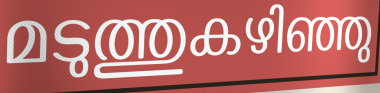
മടുത്തുകഴിഞ്ഞു